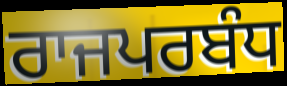
ਰਾਜਪਰਬੰਧ